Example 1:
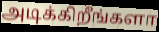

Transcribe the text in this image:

அடிக்கிறீங்களா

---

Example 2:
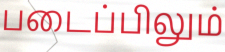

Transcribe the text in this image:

படைப்பிலும்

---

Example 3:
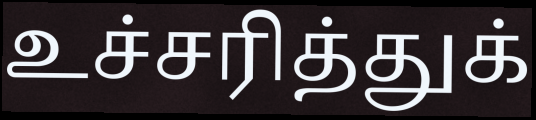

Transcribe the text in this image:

உச்சரித்துக்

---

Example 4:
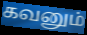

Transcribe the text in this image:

கவனும்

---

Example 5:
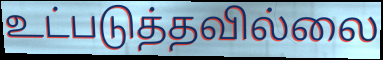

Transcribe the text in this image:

உட்படுத்தவில்லை